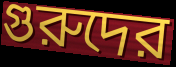
গুরুদের